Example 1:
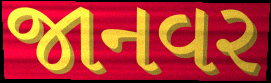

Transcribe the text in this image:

જાનવર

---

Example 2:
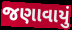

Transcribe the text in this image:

જણાવાયું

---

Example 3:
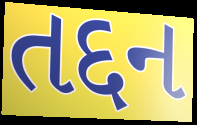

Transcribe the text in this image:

તદ્દન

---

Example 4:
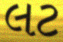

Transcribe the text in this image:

લટ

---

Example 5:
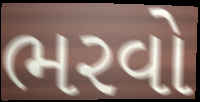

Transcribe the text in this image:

ભરવો